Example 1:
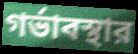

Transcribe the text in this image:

গর্ভাবস্থার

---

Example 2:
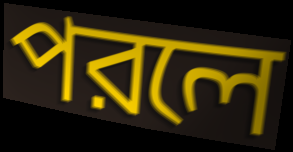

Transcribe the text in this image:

পরলে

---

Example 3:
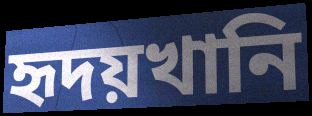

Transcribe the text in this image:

হৃদয়খানি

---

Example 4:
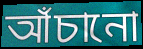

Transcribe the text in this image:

আঁচানো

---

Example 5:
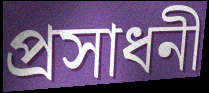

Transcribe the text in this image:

প্রসাধনী